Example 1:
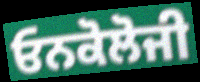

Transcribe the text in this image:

ਓਨਕੋਲੋਜੀ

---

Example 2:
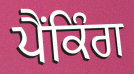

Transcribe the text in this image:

ਪੈਂਕਿੰਗ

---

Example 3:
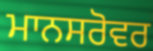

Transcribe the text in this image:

ਮਾਨਸਰੋਵਰ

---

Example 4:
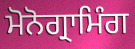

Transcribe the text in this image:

ਮੋਨੋਗ੍ਰਾਮਿੰਗ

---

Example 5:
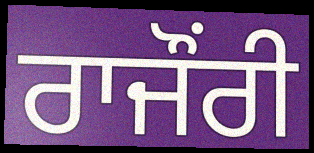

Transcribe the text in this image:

ਰਾਜੌਂਰੀ